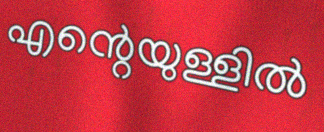
എന്റെയുള്ളിൽ